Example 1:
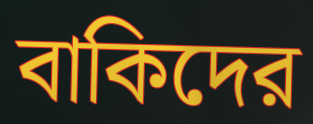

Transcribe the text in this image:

বাকিদের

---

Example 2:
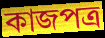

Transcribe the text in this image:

কাজপত্র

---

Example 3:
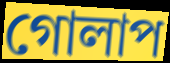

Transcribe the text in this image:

গোলাপ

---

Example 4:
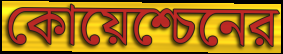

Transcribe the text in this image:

কোয়েশ্চেনের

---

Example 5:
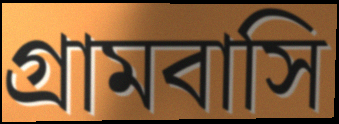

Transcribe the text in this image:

গ্রামবাসি